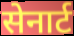
सेनार्ट